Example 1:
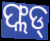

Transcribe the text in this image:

ଫ୍ଲଡ୍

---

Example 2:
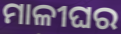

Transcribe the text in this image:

ମାଳୀଘର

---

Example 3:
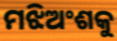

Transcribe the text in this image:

ମଝିଅଂଶକୁ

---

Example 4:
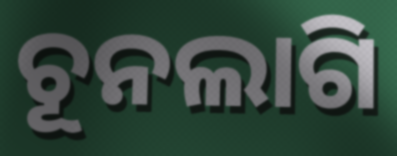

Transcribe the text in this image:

ଚୂନଲାଗି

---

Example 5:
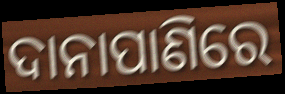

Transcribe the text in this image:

ଦାନାପାଣିରେ